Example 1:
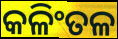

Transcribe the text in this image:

କଳିଂତଳ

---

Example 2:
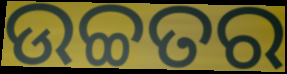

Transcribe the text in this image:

ଉଚ୍ଚତର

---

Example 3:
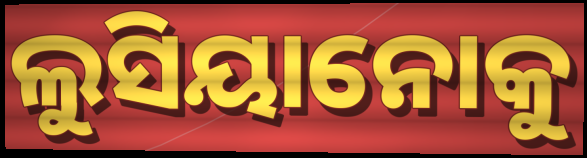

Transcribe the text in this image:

ଲୁସିୟାନୋକୁ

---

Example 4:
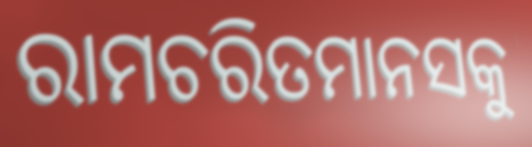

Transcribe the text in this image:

ରାମଚରିତମାନସକୁ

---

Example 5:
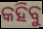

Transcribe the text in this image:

କହିବୁ